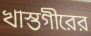
খাস্তগীরের